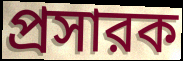
প্রসারক